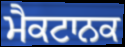
ਮੈਕਟਾਨਕ